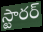
స్టారర్